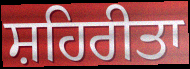
ਸ਼ਹਿਰੀਤਾ